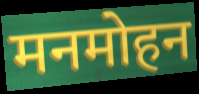
मनमोहन